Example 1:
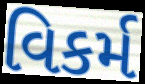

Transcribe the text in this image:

વિકર્મ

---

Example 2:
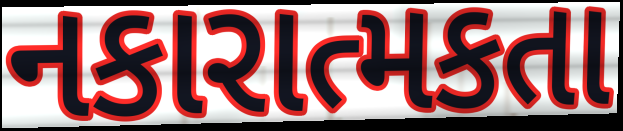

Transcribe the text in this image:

નકારાત્મકતા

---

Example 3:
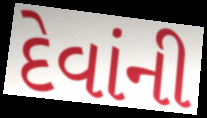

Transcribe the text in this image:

દેવાંની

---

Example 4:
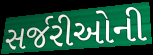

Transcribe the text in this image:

સર્જરીઓની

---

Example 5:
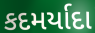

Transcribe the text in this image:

કદમર્યાદા